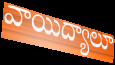
వాయిద్యాలూ